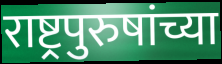
राष्ट्रपुरुषांच्या